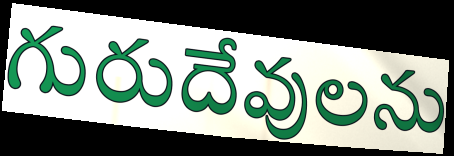
గురుదేవులను